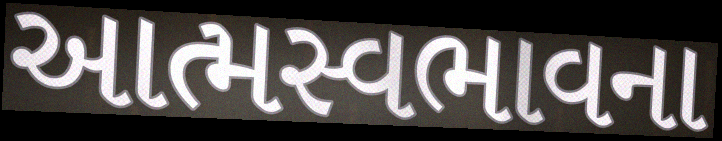
આત્મસ્વભાવના